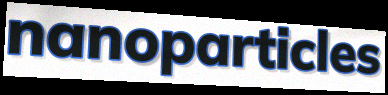
nanoparticles